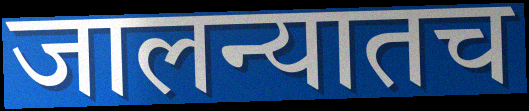
जालन्यातच